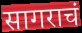
सागराचं